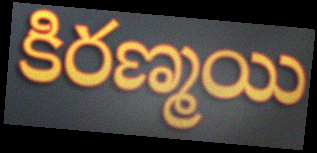
కిరణ్మయి